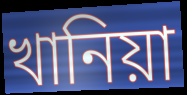
খানিয়া